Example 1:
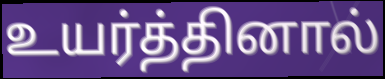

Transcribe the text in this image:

உயர்த்தினால்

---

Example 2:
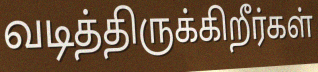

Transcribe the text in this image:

வடித்திருக்கிறீர்கள்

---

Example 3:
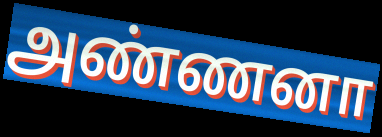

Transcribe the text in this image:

அண்ணனா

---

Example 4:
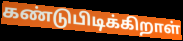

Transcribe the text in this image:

கண்டுபிடிக்கிறாள்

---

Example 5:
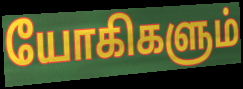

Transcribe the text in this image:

யோகிகளும்